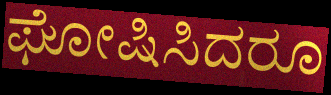
ಘೋಷಿಸಿದರೂ